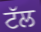
ਟੱਲ